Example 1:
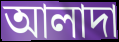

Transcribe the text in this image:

আলাদা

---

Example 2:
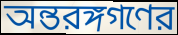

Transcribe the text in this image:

অন্তরঙ্গগণের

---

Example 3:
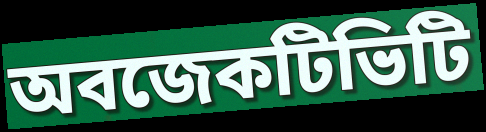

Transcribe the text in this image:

অবজেকটিভিটি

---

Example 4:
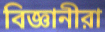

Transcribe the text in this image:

বিজ্ঞানীরা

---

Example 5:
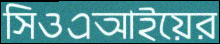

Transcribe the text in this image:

সিওএআইয়ের